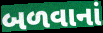
બળવાનાં